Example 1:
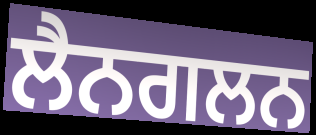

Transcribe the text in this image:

ਲੈਨਗਲਨ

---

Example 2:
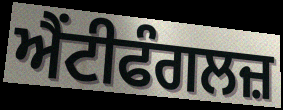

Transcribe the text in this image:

ਐਂਟੀਫੰਗਲਜ਼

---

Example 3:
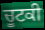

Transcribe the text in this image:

ਚੂਟਕੀ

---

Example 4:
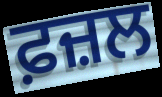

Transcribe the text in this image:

ਫ਼ਜ਼ਲ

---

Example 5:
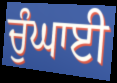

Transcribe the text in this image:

ਚੁੰਘਾਈ